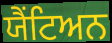
ਯੈਂਟਿਅਨ